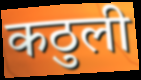
कठुली